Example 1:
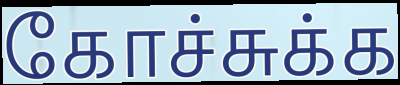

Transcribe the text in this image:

கோச்சுக்க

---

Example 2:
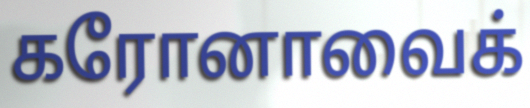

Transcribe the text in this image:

கரோனாவைக்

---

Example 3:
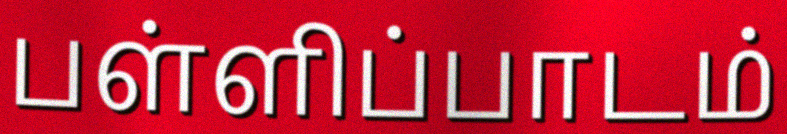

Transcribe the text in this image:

பள்ளிப்பாடம்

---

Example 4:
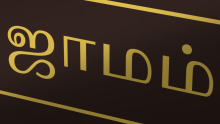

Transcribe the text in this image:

ஜாமம்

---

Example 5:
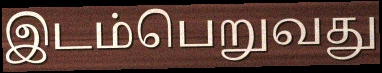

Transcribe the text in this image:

இடம்பெறுவது